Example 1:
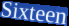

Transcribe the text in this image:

Sixteen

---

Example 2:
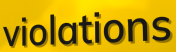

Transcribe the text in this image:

violations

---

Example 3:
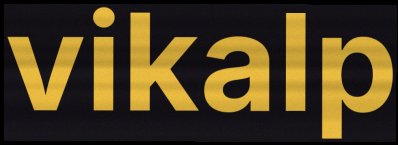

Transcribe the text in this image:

vikalp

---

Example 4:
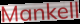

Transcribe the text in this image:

Mankell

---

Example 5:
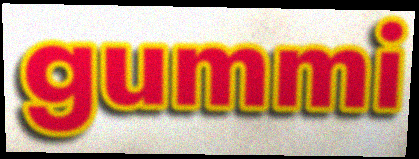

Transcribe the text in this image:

gummi